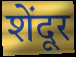
शेंदूर